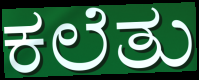
ಕಲೆತು